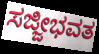
ಸಜ್ಜೀಭವತ